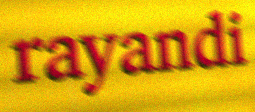
rayandi